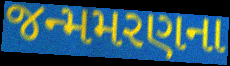
જન્મમરણના